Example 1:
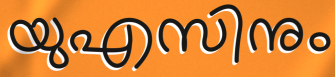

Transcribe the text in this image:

യുഎസിനും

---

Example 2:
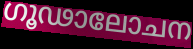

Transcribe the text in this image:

ഗൂഢാലോചന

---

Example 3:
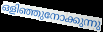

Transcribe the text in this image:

ഒളിഞ്ഞുനോക്കുന്നു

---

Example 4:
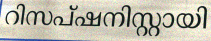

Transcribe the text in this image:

റിസപ്ഷനിസ്റ്റായി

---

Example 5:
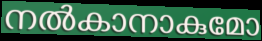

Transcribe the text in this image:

നൽകാനാകുമോ